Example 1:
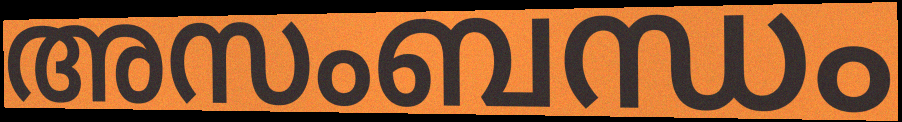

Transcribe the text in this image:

അസംബന്ധം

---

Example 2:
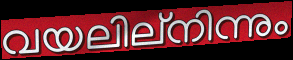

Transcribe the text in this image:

വയലില്നിന്നും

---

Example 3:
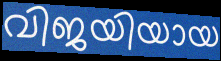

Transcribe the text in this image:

വിജയിയായ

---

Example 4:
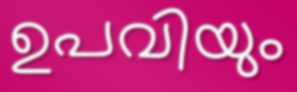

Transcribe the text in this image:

ഉപവിയും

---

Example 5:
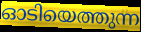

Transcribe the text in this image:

ഓടിയെത്തുന്ന